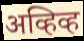
अव्हिव्ह